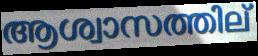
ആശ്വാസത്തില്